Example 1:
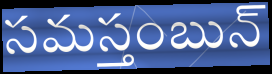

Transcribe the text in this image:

సమస్తంబున్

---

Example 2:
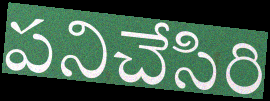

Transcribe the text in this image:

పనిచేసిరి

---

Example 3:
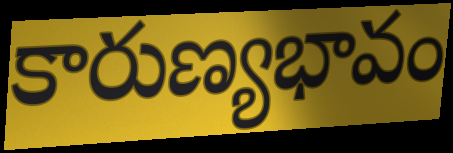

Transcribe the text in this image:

కారుణ్యభావం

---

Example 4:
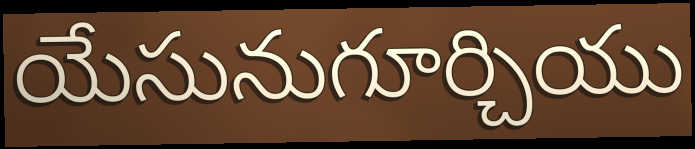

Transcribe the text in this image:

యేసునుగూర్చియు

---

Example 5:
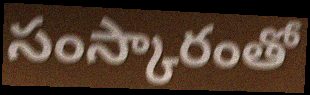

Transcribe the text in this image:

సంస్కారంతో